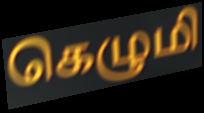
கெழுமி